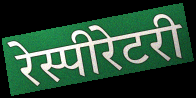
रेस्पीरेटरी